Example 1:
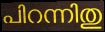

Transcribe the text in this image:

പിറന്നിതു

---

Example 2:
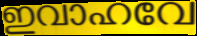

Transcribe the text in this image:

ഇവാഹവേ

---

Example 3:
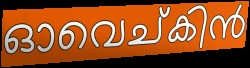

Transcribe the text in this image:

ഓവെച്കിൻ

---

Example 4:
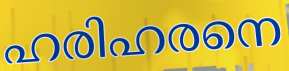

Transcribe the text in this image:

ഹരിഹരനെ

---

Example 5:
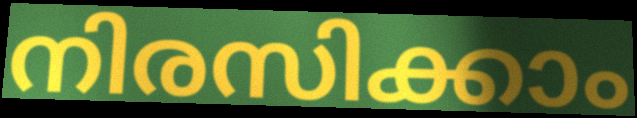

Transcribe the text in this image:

നിരസിക്കാം